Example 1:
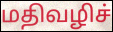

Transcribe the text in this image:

மதிவழிச்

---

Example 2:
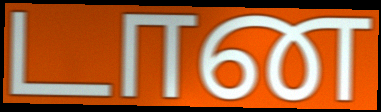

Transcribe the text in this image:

டான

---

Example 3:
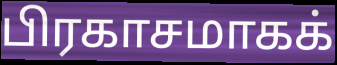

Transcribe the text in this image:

பிரகாசமாகக்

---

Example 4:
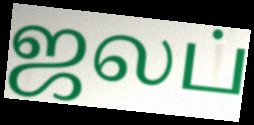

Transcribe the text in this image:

ஜலப்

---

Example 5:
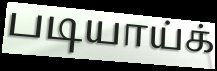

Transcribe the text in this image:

படியாய்க்